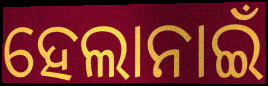
ହେଲାନାଇଁ